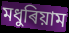
মধুৰিয়াম